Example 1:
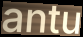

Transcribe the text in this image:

antu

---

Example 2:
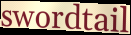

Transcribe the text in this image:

swordtail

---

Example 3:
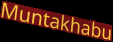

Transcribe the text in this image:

Muntakhabu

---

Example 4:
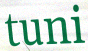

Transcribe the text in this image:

tuni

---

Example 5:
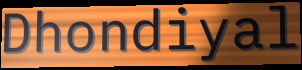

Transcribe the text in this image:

Dhondiyal